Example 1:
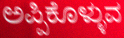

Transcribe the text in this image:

ಅಪ್ಪಿಕೊಳ್ಳುವ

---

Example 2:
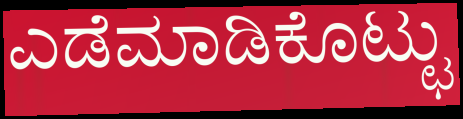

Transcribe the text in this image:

ಎಡೆಮಾಡಿಕೊಟ್ಟು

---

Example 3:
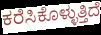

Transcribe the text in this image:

ಕರೆಸಿಕೊಳ್ಳುತ್ತಿದೆ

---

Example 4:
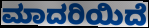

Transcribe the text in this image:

ಮಾದರಿಯಿದೆ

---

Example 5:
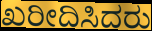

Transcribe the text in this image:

ಖರೀದಿಸಿದರು